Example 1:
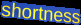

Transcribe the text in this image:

shortness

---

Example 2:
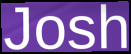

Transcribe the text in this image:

Josh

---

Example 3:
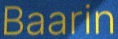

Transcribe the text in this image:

Baarin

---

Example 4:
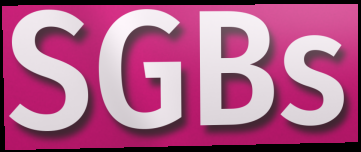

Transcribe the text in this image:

SGBs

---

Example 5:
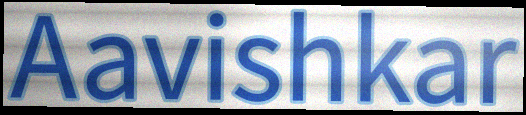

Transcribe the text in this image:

Aavishkar